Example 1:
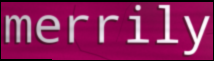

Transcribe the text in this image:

merrily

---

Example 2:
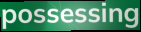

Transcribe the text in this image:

possessing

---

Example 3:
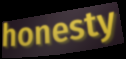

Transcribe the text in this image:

honesty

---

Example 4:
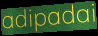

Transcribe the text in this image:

adipadai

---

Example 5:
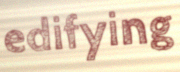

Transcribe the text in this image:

edifying